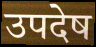
उपदेष